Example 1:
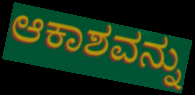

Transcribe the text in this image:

ಆಕಾಶವನ್ನು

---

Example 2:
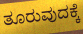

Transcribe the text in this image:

ತೂರುವುದಕ್ಕೆ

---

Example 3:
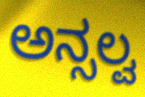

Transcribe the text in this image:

ಅನ್ಸಲ್ವ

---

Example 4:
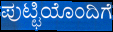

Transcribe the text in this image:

ಪುಟ್ಟಿಯೊಂದಿಗೆ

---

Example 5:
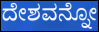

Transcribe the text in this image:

ದೇಶವನ್ನೋ